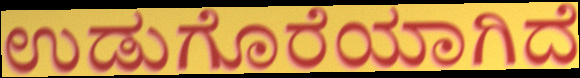
ಉಡುಗೊರೆಯಾಗಿದೆ